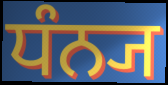
ਧੰਨ੍ਯ